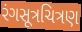
રંગસૂત્રચિત્રણ